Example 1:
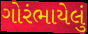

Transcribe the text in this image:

ગોરંભાયેલું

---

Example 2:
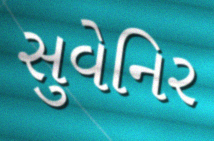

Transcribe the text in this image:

સુવેનિર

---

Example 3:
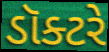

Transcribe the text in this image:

ડૉક્ટરે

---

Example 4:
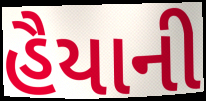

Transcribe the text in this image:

હૈયાની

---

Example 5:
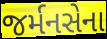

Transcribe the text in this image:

જર્મનસેના